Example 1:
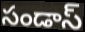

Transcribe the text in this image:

సండాస్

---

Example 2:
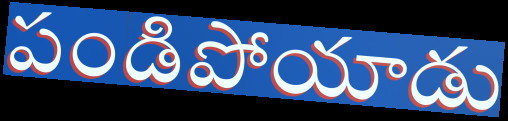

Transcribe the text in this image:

పండిపోయాడు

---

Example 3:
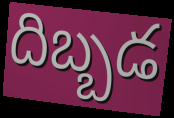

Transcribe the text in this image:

దిబ్బడ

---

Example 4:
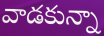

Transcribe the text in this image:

వాడకున్నా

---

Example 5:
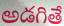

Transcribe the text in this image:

అడగితే